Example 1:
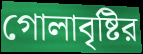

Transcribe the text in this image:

গোলাবৃষ্টির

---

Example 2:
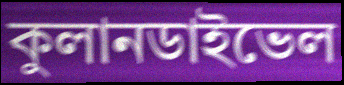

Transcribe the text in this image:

কুলানডাইভেল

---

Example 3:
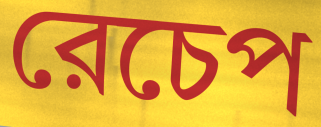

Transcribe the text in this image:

রেচেপ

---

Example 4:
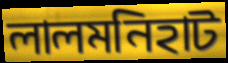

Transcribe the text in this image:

লালমনিহাট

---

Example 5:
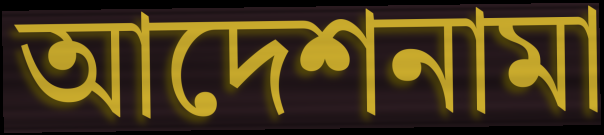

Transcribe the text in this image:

আদেশনামা